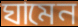
ঘামেন